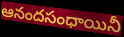
ఆనందసంధాయినీ